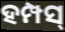
ହମ୍ପସ୍